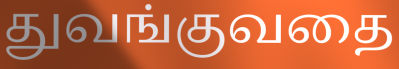
துவங்குவதை